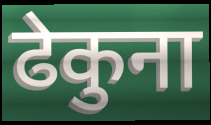
ढेकुना